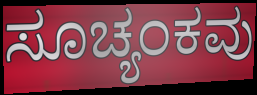
ಸೂಚ್ಯಂಕವು